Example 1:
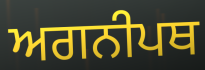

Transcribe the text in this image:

ਅਗਨੀਪਥ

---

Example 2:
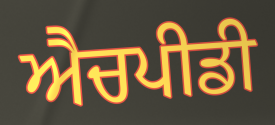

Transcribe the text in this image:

ਐਚਪੀਡੀ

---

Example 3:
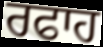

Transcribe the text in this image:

ਰਫਾਹ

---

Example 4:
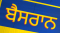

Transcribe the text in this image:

ਬੈਸਰਾਨ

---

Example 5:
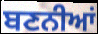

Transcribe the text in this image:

ਬਣਨੀਆਂ